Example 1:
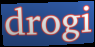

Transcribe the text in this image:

drogi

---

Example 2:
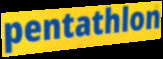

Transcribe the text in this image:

pentathlon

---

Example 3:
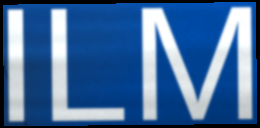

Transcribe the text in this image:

ILM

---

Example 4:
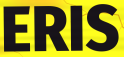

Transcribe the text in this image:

ERIS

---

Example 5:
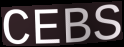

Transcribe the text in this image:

CEBS